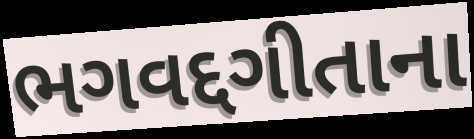
ભગવદ્દગીતાના